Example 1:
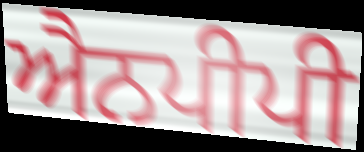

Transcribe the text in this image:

ਐਨਪੀਪੀ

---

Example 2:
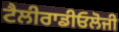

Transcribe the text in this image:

ਟੈਲੀਰਾਡੀਓਲੋਜੀ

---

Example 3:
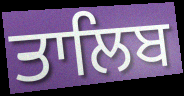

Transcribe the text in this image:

ਤਾਲਿਬ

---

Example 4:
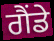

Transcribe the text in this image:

ਗੈਂਡੇ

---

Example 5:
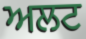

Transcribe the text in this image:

ਅਲਟ